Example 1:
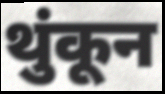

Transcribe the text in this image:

थुंकून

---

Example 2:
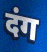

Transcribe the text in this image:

दंग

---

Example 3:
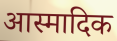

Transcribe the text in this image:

आस्मादिक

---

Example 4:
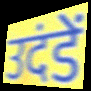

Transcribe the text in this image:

उदंडें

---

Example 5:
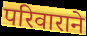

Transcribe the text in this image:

परिवाराने